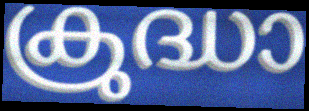
ക്രുദ്ധാ